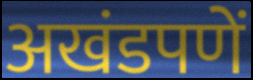
अखंडपणें